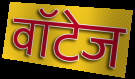
वॉटेज